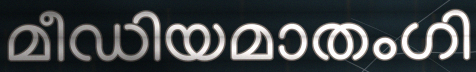
മീഡിയമാതംഗി